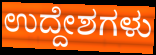
ಉದ್ದೇಶಗಳು